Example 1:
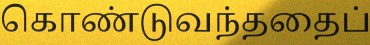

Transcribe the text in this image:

கொண்டுவந்ததைப்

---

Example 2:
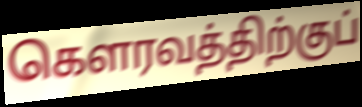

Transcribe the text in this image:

கௌரவத்திற்குப்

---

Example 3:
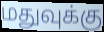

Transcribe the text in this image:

மதுவுக்கு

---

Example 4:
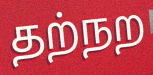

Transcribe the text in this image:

தற்நற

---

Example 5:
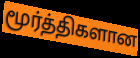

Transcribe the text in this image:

மூர்த்திகளான